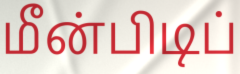
மீன்பிடிப்